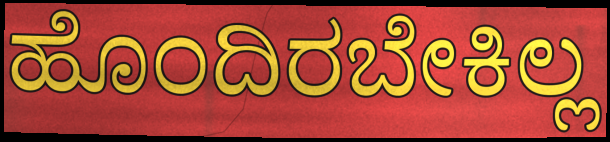
ಹೊಂದಿರಬೇಕಿಲ್ಲ